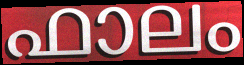
ഫാലം